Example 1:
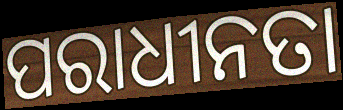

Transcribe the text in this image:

ପରାଧୀନତା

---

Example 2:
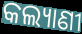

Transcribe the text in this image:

କଲ୍ୟାଣୀ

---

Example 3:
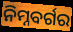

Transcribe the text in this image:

ନିମ୍ନବର୍ଗର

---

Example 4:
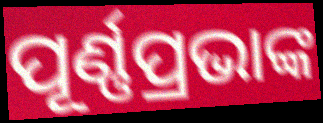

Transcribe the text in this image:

ପୂର୍ଣ୍ଣପ୍ରଭାଙ୍କ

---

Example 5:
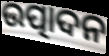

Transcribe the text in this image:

ଉତ୍ପାଦନ